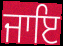
ਜਾਇ